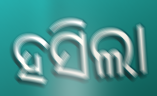
ହସିଲା